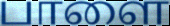
பாளை